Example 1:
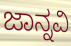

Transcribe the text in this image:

ಜಾನ್ನವಿ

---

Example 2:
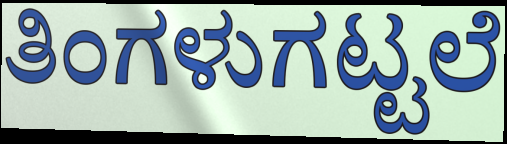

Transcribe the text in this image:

ತಿಂಗಳುಗಟ್ಟಲೆ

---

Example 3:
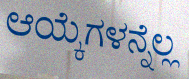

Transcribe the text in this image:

ಆಯ್ಕೆಗಳನ್ನೆಲ್ಲ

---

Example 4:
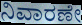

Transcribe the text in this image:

ನಿವಾರಣೇ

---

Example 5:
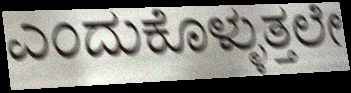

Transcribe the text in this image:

ಎಂದುಕೊಳ್ಳುತ್ತಲೇ